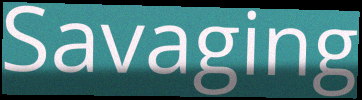
Savaging